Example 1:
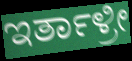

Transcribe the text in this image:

ಇರ್ತಾಳ್ರೀ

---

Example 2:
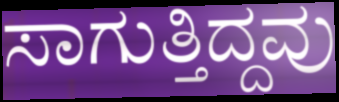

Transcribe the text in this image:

ಸಾಗುತ್ತಿದ್ದವು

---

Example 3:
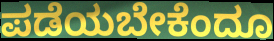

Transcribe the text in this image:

ಪಡೆಯಬೇಕೆಂದೂ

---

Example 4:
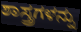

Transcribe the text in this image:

ಶಾಸ್ತ್ರಗಳನ್ನು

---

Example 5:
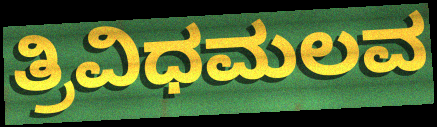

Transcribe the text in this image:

ತ್ರಿವಿಧಮಲವ